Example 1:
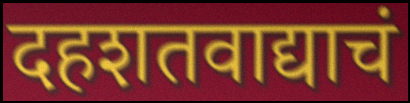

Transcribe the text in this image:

दहशतवाद्याचं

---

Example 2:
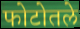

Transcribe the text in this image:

फोटोतले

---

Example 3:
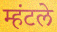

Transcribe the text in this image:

म्हंटले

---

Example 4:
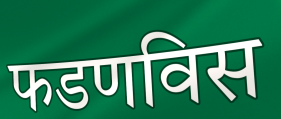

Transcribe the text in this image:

फडणविस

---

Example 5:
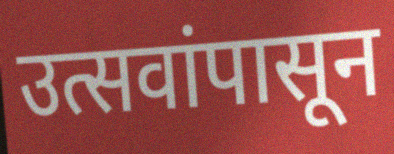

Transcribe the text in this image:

उत्सवांपासून